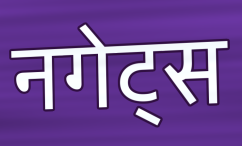
नगेट्स